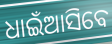
ଧାଇଁଆସିବେ